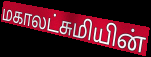
மகாலட்சுமியின்